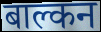
बाल्कन